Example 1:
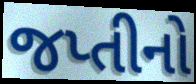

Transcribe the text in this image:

જપ્તીનો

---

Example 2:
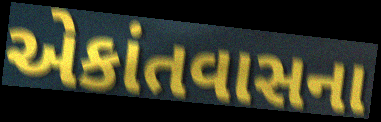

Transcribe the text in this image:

એકાંતવાસના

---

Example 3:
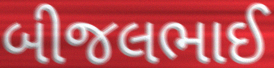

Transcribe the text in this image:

બીજલભાઈ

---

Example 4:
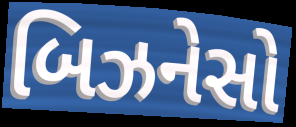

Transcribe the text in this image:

બિઝનેસો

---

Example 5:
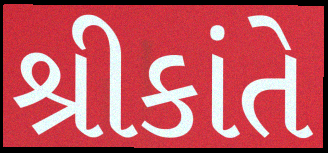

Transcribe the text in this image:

શ્રીકાંતે